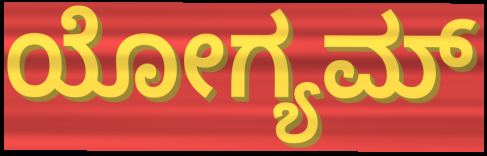
ಯೋಗ್ಯಮ್